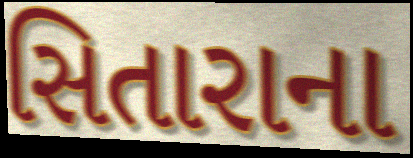
સિતારાના